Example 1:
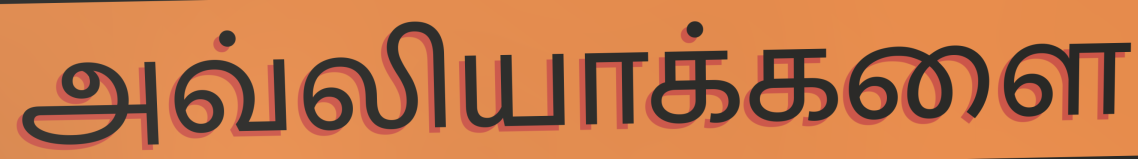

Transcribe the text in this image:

அவ்லியாக்களை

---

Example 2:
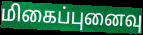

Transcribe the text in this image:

மிகைப்புனைவு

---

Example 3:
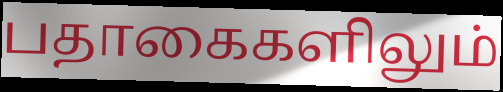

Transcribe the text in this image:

பதாகைகளிலும்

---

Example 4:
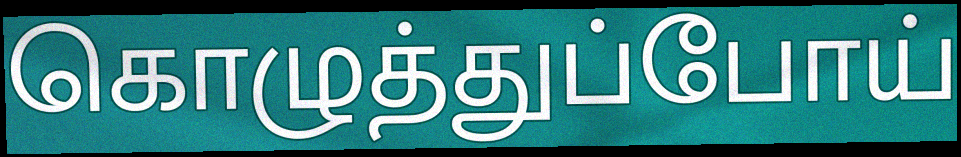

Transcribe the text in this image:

கொழுத்துப்போய்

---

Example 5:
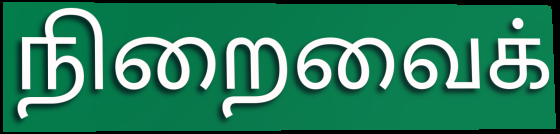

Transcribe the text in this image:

நிறைவைக்